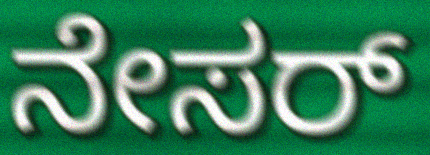
ನೇಸರ್